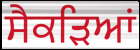
ਸੈਕੜਿਆਂ